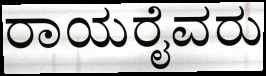
ರಾಯರೈವರು